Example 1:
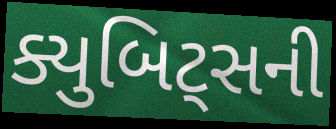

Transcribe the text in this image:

ક્યુબિટ્સની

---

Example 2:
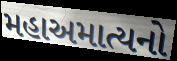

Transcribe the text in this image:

મહાઅમાત્યનો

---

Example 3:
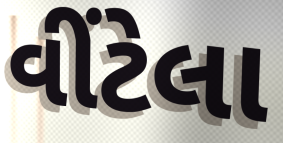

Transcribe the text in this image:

વીંટેલા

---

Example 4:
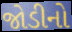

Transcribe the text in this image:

જોડીનો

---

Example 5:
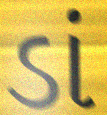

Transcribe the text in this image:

ડાં